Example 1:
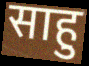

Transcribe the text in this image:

साहु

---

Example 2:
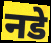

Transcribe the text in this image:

नडे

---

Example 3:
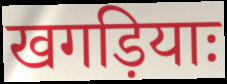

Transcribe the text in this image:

खगड़ियाः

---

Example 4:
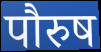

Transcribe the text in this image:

पौरुष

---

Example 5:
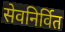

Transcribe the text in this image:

सेवनिर्वित